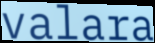
valara